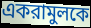
একরামুলকে